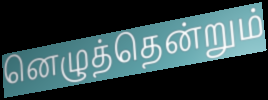
னெழுத்தென்றும்